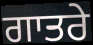
ਗਾਤਰੇ